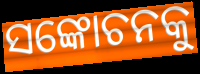
ସଙ୍କୋଚନକୁ